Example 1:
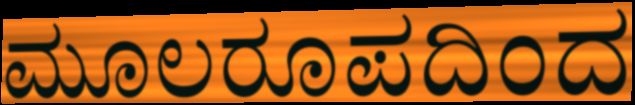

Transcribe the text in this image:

ಮೂಲರೂಪದಿಂದ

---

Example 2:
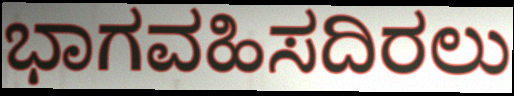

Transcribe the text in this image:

ಭಾಗವಹಿಸದಿರಲು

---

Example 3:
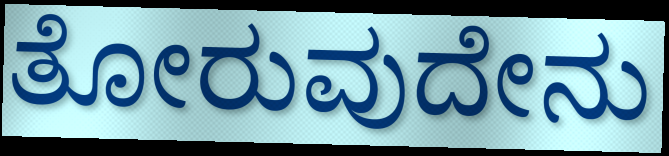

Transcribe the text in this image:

ತೋರುವುದೇನು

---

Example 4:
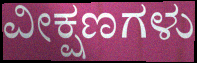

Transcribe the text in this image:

ವೀಕ್ಷಣಗಳು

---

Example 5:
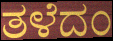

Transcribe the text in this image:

ತಳೆದಂ